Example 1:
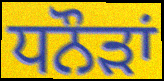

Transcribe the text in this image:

ਧਨੌੜਾਂ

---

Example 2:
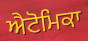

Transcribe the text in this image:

ਐਟੋਮਿਕਾ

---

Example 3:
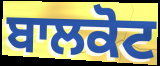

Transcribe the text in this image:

ਬਾਲਕੋਟ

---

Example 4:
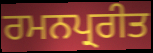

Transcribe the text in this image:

ਰਮਨਪ੍ਰਰੀਤ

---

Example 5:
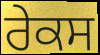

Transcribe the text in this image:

ਰੇਕਸ